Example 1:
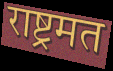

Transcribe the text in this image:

राष्ट्रमत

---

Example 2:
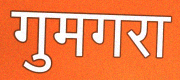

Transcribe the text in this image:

गुमगरा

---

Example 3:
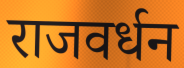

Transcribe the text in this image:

राजवर्धन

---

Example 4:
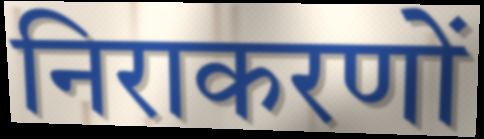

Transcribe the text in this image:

निराकरणों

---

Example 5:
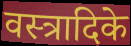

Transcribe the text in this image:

वस्त्रादिके